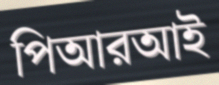
পিআরআই